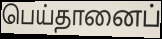
பெய்தானைப்